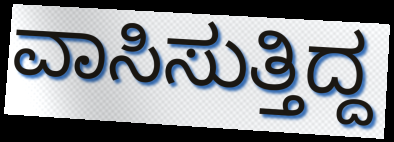
ವಾಸಿಸುತ್ತಿದ್ದ